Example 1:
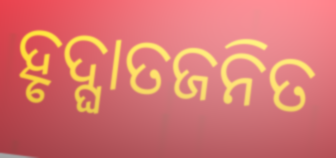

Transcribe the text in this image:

ହୃଦ୍ଘାତଜନିତ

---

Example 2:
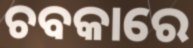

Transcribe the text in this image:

ଚବକାରେ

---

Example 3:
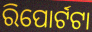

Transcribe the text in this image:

ରିପୋର୍ଟଟା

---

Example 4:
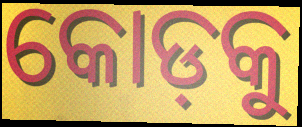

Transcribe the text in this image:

କୋଡ଼କୁ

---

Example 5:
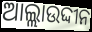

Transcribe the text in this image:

ଆଲ୍ଲାଉଦ୍ଦୀନ